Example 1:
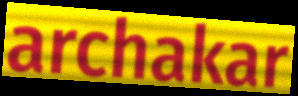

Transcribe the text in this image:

archakar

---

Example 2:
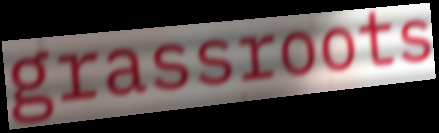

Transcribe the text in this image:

grassroots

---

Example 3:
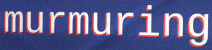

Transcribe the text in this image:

murmuring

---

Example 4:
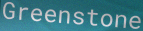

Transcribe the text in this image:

Greenstone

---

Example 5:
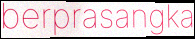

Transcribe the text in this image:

berprasangka